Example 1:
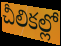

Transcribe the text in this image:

చీలికల్లో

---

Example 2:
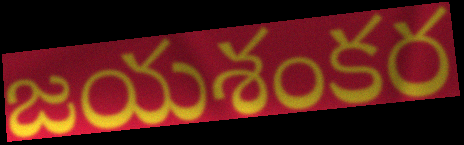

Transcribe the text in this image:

జయశంకర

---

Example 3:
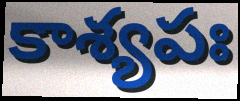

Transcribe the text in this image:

కాశ్యపః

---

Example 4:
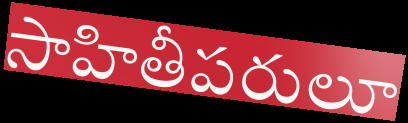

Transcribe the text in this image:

సాహితీపరులూ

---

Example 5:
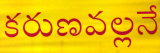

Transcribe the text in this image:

కరుణవల్లనే